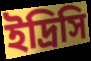
ইদ্রিসি